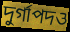
দুর্গাপদও